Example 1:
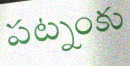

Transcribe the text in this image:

పట్నంకు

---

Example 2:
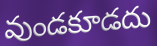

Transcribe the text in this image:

వుండకూడదు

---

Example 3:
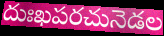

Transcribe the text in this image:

దుఃఖపరచునెడల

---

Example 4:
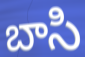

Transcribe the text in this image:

బాసి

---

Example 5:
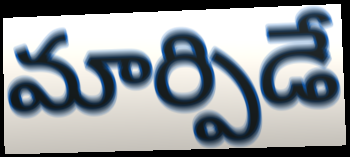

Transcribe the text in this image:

మార్పిడే